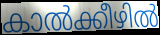
കാൽക്കീഴിൽ